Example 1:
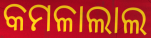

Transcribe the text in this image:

କମଳାଲାଲ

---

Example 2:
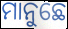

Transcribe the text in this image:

ମାନୁଛେ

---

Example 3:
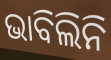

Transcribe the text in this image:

ଭାବିଲିନି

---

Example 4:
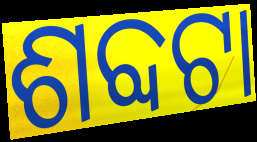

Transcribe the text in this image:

ଶବ୍ଦଟା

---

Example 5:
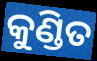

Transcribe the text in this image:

କୁଣ୍ଡିତ